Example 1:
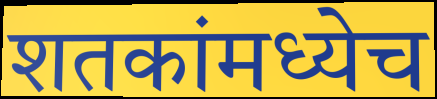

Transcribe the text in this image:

शतकांमध्येच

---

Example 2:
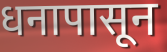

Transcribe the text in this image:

धनापासून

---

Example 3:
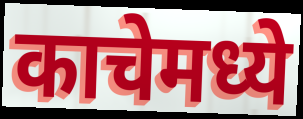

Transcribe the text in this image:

काचेमध्ये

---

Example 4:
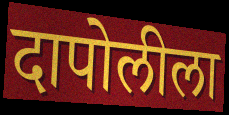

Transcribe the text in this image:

दापोलीला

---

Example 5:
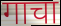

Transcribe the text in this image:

गाचा